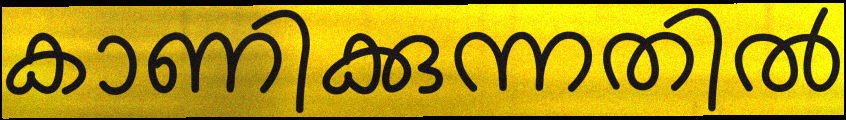
കാണിക്കുന്നതിൽ